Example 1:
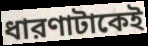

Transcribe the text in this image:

ধারণাটাকেই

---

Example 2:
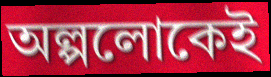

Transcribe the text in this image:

অল্পলোকেই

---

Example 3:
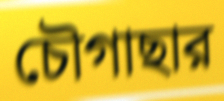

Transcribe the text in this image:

চৌগাছার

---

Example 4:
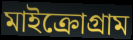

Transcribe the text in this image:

মাইক্রোগ্রাম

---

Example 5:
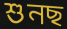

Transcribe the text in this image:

শুনছ